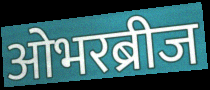
ओभरब्रीज